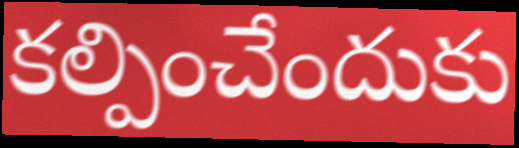
కల్పించేందుకు